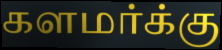
களமர்க்கு